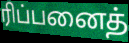
ரிப்பனைத்